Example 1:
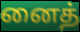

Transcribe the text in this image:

னைத்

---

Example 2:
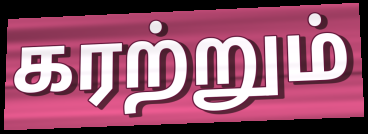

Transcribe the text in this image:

கரற்றும்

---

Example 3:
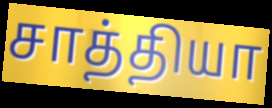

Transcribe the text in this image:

சாத்தியா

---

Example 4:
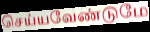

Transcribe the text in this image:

செய்யவேண்டுமே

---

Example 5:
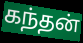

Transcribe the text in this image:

கந்தன்